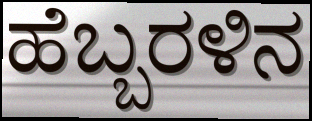
ಹೆಬ್ಬರಳಿನ